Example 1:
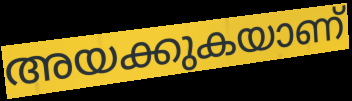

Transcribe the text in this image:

അയക്കുകയാണ്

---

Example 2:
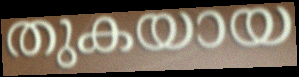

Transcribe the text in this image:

തുകയായ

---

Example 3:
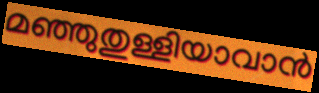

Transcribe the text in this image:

മഞ്ഞുതുള്ളിയാവാൻ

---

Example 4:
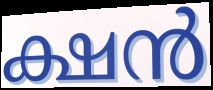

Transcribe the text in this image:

ക്ഷൻ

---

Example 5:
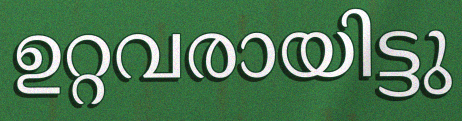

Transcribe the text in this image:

ഉറ്റവരായിട്ടു